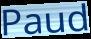
Paud